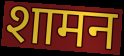
शामन